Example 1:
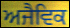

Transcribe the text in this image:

ਅਜੈਵਿਕ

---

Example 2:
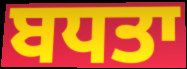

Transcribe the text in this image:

ਬਧਤਾ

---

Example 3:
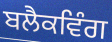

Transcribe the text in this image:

ਬਲੈਕਵਿੰਗ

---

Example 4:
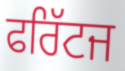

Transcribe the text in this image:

ਫਰਿੱਟਜ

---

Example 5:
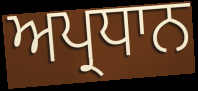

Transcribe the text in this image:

ਅਪ੍ਰਧਾਨ